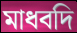
মাধবদি